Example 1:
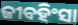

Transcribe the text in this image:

ଜୀବହିଂସା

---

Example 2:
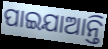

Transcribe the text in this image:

ପାଇଯାଆନ୍ତି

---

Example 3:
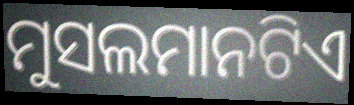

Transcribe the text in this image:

ମୁସଲମାନଟିଏ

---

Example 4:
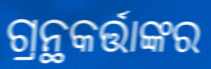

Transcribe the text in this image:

ଗ୍ରନ୍ଥକର୍ତ୍ତାଙ୍କର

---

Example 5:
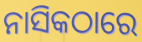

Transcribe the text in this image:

ନାସିକଠାରେ